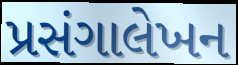
પ્રસંગાલેખન